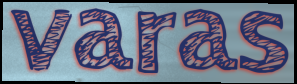
varas